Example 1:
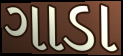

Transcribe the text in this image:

ગાડા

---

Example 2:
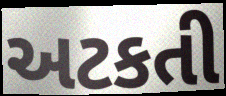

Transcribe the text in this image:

અટકતી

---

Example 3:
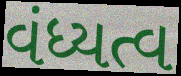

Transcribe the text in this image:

વંધ્યત્વ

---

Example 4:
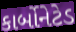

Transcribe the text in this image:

કાર્બોનેટેડ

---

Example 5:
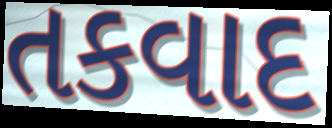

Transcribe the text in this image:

તકવાદ